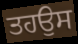
ਤਹਉਸ